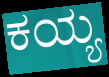
ಕಯ್ಯ